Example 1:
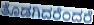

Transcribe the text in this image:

ತೊಡಗಿದರೆಂದರೆ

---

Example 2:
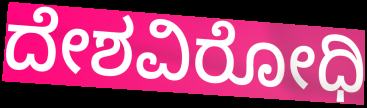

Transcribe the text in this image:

ದೇಶವಿರೋಧಿ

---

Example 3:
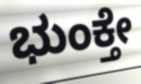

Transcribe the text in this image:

ಭುಂಕ್ತೇ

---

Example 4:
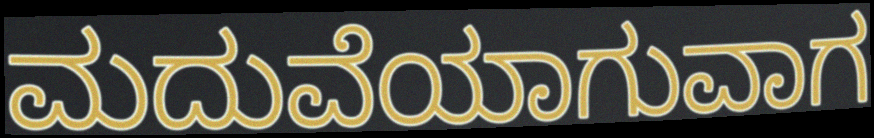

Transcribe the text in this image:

ಮದುವೆಯಾಗುವಾಗ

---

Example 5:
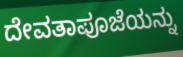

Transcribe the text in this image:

ದೇವತಾಪೂಜೆಯನ್ನು